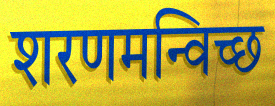
शरणमन्विच्छ